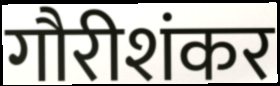
गौरीशंकर